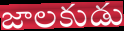
జాలకుడు